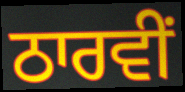
ਠਾਰਵੀਂ